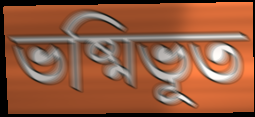
ভষ্মিভূত